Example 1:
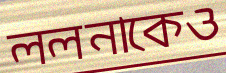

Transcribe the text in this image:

ললনাকেও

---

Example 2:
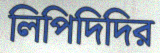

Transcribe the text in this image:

লিপিদিদির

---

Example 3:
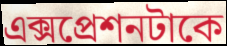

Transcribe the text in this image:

এক্সপ্রেশনটাকে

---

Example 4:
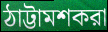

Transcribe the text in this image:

ঠাট্টামশকরা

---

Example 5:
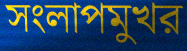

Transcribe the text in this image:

সংলাপমুখর